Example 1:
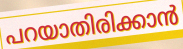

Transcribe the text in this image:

പറയാതിരിക്കാൻ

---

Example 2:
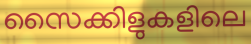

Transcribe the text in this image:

സൈക്കിളുകളിലെ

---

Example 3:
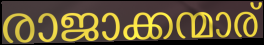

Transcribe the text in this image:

രാജാക്കന്മാര്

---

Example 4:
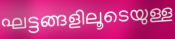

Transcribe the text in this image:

ഘട്ടങ്ങളിലൂടെയുള്ള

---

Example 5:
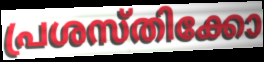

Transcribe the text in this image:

പ്രശസ്തിക്കോ